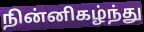
நின்னிகழ்ந்து